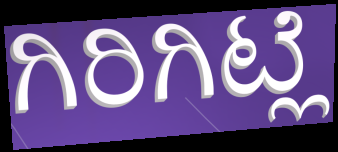
ಗಿರಿಗಿಟ್ಲೆ